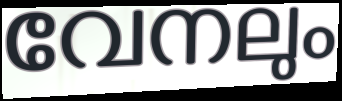
വേനലും